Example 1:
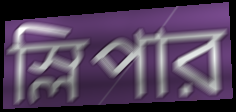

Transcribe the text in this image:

স্লিপার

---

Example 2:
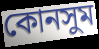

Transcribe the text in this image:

কোনসুম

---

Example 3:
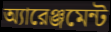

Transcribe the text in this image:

অ্যারেঞ্জমেন্ট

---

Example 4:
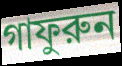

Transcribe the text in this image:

গাফুরুন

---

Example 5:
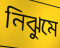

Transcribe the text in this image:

নিঝুমে